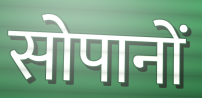
सोपानों